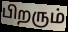
பிறரும்